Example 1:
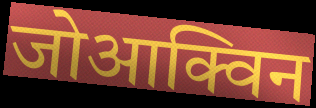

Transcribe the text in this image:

जोआक्विन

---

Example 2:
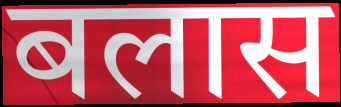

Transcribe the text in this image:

बलास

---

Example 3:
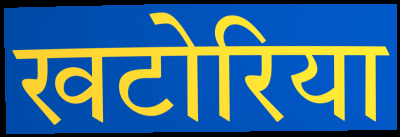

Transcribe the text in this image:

खटोरिया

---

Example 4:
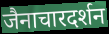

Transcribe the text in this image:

जैनाचारदर्शन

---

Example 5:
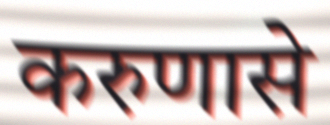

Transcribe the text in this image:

करुणासे